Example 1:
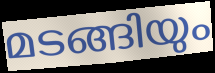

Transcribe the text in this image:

മടങ്ങിയും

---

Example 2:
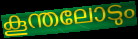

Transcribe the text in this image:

കൂന്തലോടും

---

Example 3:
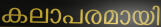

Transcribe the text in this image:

കലാപരമായി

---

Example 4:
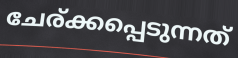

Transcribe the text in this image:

ചേര്ക്കപ്പെടുന്നത്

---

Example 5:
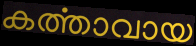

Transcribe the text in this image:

കൎത്താവായ